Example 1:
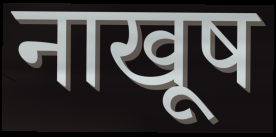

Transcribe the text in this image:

नाखूष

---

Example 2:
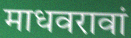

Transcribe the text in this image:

माधवरावां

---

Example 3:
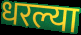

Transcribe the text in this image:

धरल्या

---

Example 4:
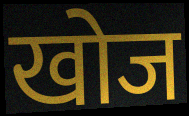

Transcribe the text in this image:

खोज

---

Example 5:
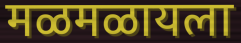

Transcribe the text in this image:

मळमळायला